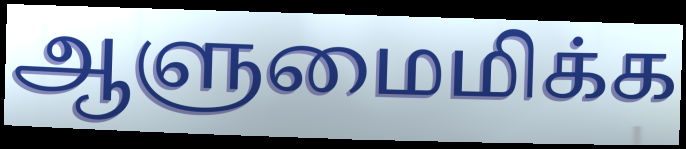
ஆளுமைமிக்க